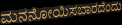
ಮನನೋಯಿಸಬಾರದೆಂದು